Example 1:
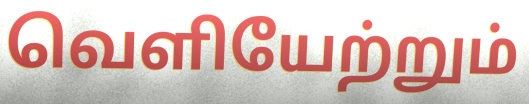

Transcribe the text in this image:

வெளியேற்றும்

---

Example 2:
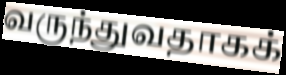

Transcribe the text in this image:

வருந்துவதாகக்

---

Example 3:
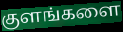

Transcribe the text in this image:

குளங்களை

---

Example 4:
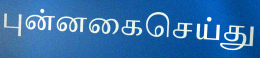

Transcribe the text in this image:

புன்னகைசெய்து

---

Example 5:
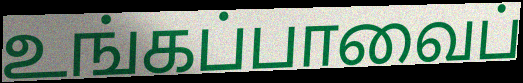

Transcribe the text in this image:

உங்கப்பாவைப்